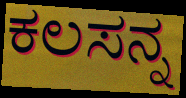
ಕಲಸನ್ನ